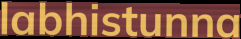
labhistunna